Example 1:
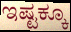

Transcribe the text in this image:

ಇಷ್ಟಕ್ಕೂ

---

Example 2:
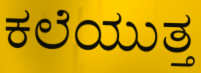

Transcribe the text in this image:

ಕಲೆಯುತ್ತ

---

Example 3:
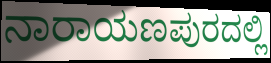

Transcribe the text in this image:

ನಾರಾಯಣಪುರದಲ್ಲಿ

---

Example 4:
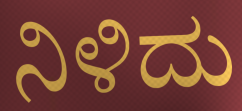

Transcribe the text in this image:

ನಿಳಿದು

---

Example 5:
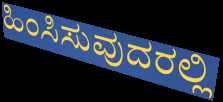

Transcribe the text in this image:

ಹಿಂಸಿಸುವುದರಲ್ಲಿ